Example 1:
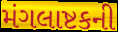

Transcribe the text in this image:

મંગલાષ્ટકની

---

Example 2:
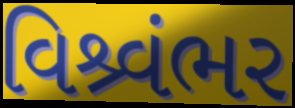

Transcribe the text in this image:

વિશ્ર્વંભર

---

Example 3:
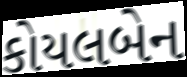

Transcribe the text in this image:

કોયલબેન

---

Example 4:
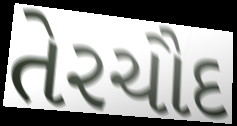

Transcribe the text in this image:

તેરચૌદ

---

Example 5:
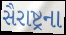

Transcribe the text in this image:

સૈરાષ્ટ્રના